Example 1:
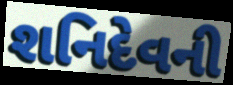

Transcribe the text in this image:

શનિદેવની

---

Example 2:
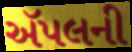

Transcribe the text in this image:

ઍપલની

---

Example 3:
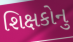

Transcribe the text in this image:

શિક્ષકોનુ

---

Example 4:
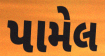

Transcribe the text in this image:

પામેલ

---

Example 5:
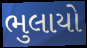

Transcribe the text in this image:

ભુલાયો